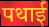
पथाई